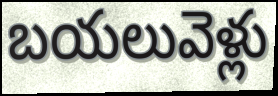
బయలువెళ్లు